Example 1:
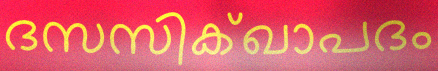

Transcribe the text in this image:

ദസസിക്ഖാപദം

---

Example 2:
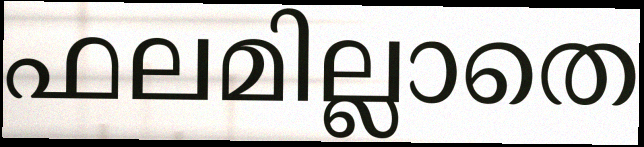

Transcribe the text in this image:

ഫലമില്ലാതെ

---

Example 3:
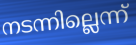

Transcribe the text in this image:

നടന്നില്ലെന്ന്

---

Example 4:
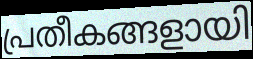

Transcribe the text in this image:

പ്രതീകങ്ങളായി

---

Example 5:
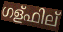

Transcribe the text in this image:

ഗള്ഫില്